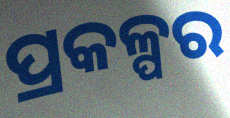
ପ୍ରକଳ୍ପର